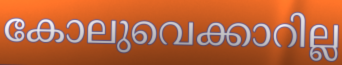
കോലുവെക്കാറില്ല